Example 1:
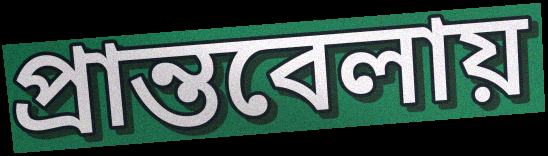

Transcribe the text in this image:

প্রান্তবেলায়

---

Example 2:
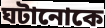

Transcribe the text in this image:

ঘটানোকে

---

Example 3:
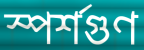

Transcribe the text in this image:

স্পর্শগুণ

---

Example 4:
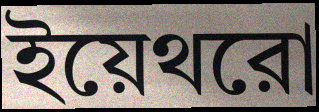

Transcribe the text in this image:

ইয়েথরো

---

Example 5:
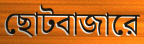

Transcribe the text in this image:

ছোটবাজারে